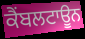
ਕੈਂਬਲਟਾਊਨ